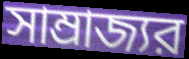
সাম্রাজ্যর